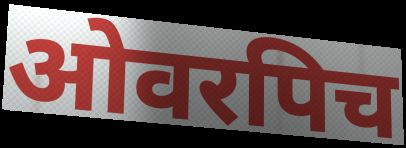
ओवरपिच